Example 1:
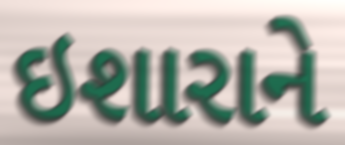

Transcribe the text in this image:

ઇશારાને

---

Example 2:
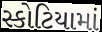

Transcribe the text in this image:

સ્કોટિયામાં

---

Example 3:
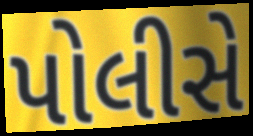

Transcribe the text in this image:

પોલીસે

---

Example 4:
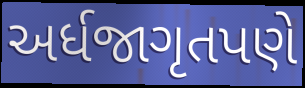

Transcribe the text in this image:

અર્ધજાગૃતપણે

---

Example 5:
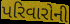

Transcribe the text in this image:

પરિવારોની